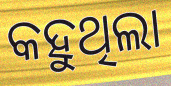
କହୁଥିଲା